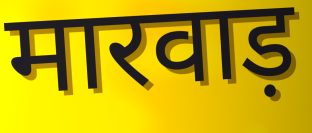
मारवाड़